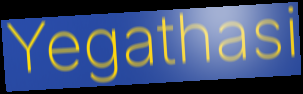
Yegathasi